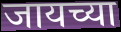
जायच्या